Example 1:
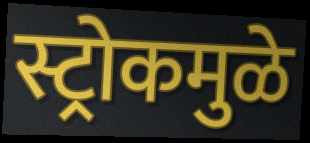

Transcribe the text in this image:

स्ट्रोकमुळे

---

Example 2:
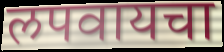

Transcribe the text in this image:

लपवायचा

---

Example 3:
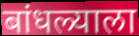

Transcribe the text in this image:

बांधल्याला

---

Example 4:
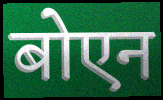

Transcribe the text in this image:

बोएन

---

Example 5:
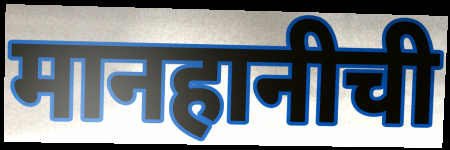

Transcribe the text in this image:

मानहानीची